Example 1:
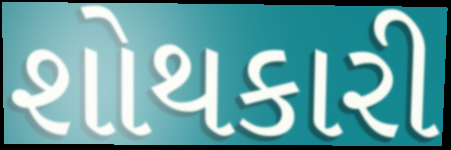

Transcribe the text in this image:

શોથકારી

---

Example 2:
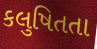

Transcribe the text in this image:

કલુષિતતા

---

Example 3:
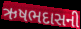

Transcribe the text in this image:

ઋષભદાસની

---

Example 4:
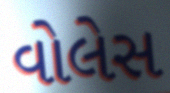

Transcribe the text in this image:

વોલેસ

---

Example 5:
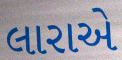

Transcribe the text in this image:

લારાએ